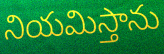
నియమిస్తాను